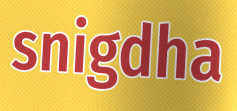
snigdha